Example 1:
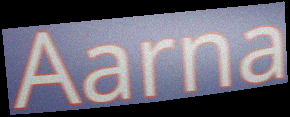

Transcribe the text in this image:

Aarna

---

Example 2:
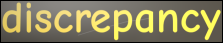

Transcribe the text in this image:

discrepancy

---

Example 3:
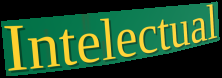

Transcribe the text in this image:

Intelectual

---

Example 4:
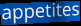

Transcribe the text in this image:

appetites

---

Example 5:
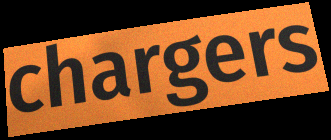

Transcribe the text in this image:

chargers